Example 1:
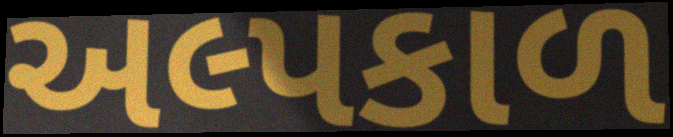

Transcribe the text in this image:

અલ્પકાળ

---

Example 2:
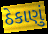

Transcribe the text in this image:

ઠેકાણું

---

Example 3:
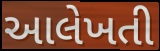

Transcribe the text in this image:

આલેખતી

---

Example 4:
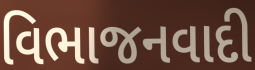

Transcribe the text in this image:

વિભાજનવાદી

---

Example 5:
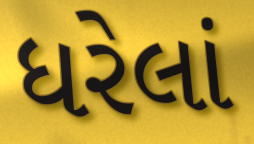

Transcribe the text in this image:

ધરેલાં